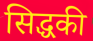
सिद्धकी